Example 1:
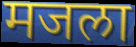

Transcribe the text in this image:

मजला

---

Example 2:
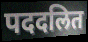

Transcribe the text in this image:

पददलित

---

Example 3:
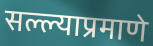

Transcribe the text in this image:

सल्ल्याप्रमाणे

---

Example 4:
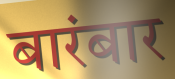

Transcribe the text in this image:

बारंबार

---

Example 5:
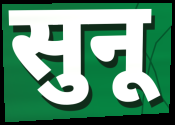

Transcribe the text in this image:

सुनू